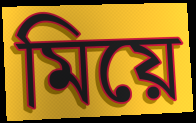
মিয়ে